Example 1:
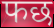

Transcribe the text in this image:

फछ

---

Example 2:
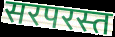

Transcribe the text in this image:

सरपरस्त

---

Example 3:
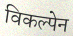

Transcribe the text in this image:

विकल्पेन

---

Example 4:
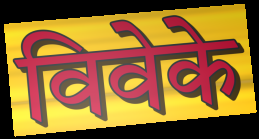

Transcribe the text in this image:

विवेके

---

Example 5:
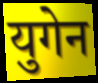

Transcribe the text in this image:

युगेन